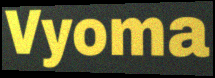
Vyoma